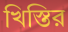
খিস্তির